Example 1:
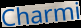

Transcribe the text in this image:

Charmi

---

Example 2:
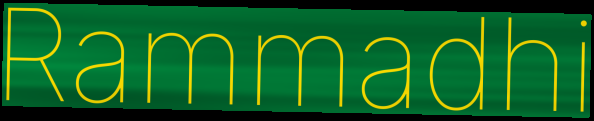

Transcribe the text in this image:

Rammadhi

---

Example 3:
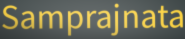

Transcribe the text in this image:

Samprajnata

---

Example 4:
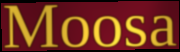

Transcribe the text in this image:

Moosa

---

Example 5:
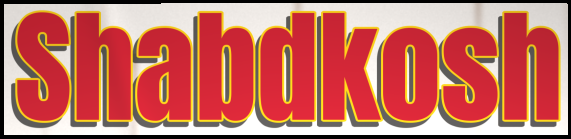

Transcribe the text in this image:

Shabdkosh